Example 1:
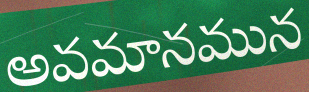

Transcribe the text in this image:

అవమానమున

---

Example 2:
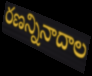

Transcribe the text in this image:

రణన్నినాదాల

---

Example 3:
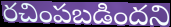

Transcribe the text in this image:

రచింపబడిందని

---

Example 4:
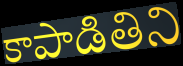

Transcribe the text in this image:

కాపాడితిని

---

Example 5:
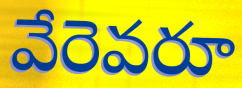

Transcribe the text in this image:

వేరెవరూ